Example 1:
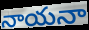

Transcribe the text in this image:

నాయనా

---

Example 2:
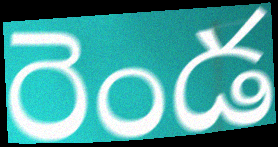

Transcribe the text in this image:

రెండ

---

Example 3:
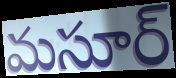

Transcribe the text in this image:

మసూర్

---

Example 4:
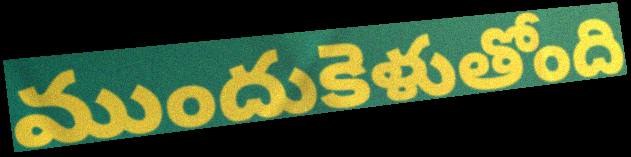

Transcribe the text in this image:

ముందుకెళుతోంది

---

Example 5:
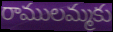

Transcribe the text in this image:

రాములమ్మకు